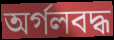
অর্গলবদ্ধ